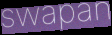
swapan